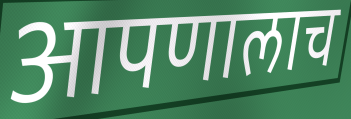
आपणालाच